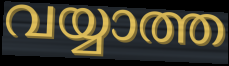
വയ്യാത്ത